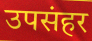
उपसंहर